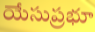
యేసుప్రభూ